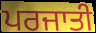
ਪਰਜਾਤੀ